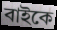
বাইকে